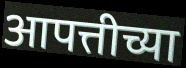
आपत्तीच्या